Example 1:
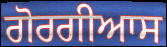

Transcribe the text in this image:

ਗੋਰਗੀਆਸ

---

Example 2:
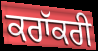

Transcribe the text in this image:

ਕਰਾੱਕਰੀ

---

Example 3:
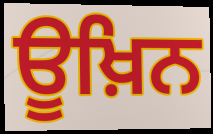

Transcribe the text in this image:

ਊਖ਼ਿਨ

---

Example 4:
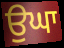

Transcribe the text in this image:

ਉਘਾ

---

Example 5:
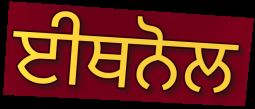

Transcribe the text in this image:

ਈਥਨੋਲ